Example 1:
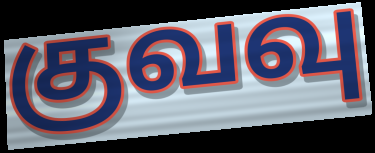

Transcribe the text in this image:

குவவு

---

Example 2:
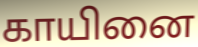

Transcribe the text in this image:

காயினை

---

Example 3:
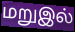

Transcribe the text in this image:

மறுஇல்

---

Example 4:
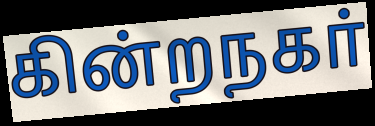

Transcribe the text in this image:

கின்றநகர்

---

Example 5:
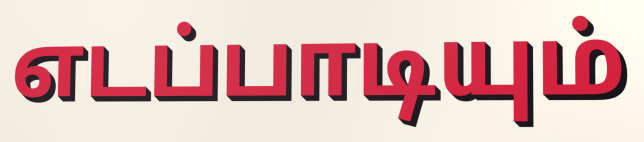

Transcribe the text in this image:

எடப்பாடியும்